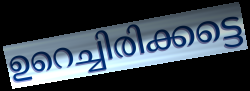
ഉറെച്ചിരിക്കട്ടെ